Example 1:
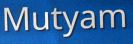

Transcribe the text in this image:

Mutyam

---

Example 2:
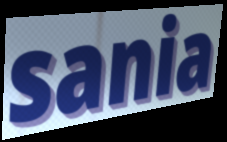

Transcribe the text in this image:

sania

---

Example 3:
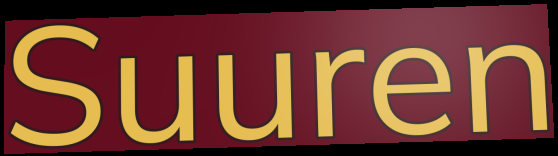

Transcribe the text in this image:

Suuren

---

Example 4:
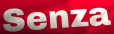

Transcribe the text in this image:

Senza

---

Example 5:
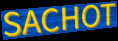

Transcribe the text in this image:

SACHOT